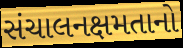
સંચાલનક્ષમતાનો